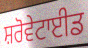
ਸ਼ਰੋਵੇਟਾਈਡ